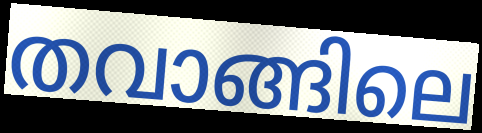
തവാങ്ങിലെ